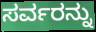
ಸರ್ವರನ್ನು